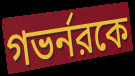
গভর্নরকে